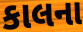
કાલના